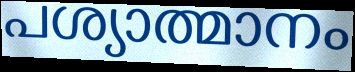
പശ്യാത്മാനം